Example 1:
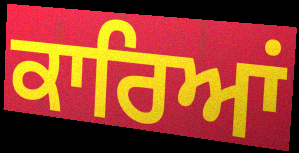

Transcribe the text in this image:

ਕਾਰਿਆਂ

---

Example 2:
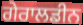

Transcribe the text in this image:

ਗੇਰਾਲਡੀਨ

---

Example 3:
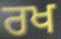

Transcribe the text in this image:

ਰਖ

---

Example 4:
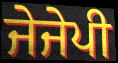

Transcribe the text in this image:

ਜੇਜੇਪੀ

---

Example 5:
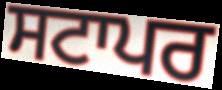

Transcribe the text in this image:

ਸਟਾਪਰ